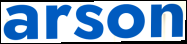
arson